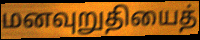
மனவுறுதியைத்